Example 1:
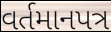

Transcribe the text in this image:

વર્તમાનપત્ર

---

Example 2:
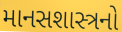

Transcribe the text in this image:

માનસશાસ્ત્રનો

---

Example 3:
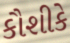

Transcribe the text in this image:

કૌશીકે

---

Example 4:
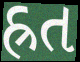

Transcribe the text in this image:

હ્રત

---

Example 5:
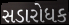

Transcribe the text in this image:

સડારોધક